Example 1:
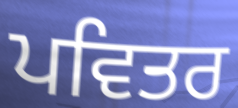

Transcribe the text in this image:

ਪਵਿਤਰ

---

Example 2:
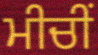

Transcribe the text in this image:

ਮੀਚੀਂ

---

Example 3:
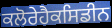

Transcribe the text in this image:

ਕਲੋਰੇਹੈਕਸਿਡੀਨ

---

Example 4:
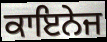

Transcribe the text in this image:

ਕਾਇਨੇਜ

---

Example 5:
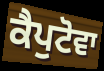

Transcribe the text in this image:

ਕੈਪੁਟੋਵਾ